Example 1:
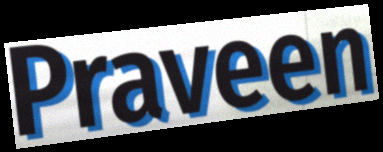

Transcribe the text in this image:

Praveen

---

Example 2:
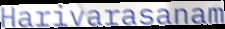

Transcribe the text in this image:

Harivarasanam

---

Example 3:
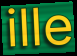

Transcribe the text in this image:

ille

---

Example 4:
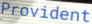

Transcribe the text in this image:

Provident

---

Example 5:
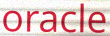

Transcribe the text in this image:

oracle